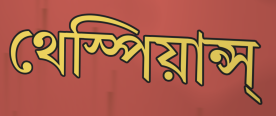
থেস্পিয়ান্স্